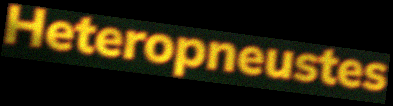
Heteropneustes